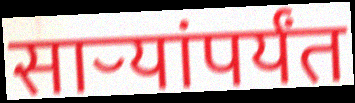
साऱ्यांपर्यंत